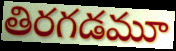
తిరగడమూ